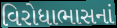
વિરોધાભાસનાં